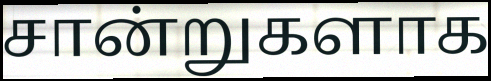
சான்றுகளாக